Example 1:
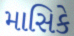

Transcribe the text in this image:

માસિકે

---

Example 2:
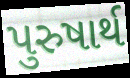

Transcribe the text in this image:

પુરુષાર્થ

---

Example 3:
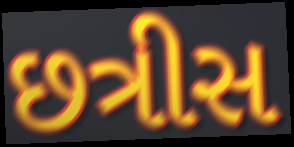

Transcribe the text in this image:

છત્રીસ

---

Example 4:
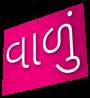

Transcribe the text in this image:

વાળું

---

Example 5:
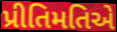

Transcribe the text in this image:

પ્રીતિમતિએ